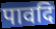
पावदि